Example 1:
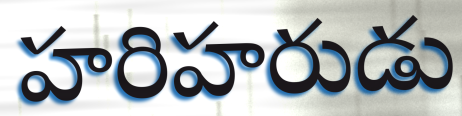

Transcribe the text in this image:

హరిహరుడు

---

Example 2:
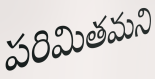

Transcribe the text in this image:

పరిమితమని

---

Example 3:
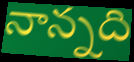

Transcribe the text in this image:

నాన్నది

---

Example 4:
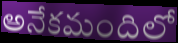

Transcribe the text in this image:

అనేకమందిలో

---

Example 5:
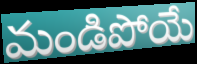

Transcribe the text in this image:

మండిపోయే